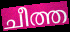
ചീത്ത